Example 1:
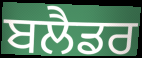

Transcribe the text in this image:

ਬਲੈਡਰ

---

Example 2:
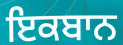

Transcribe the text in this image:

ਇਕਬਾਨ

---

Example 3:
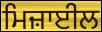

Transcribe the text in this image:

ਮਿਜ਼ਾਈਲ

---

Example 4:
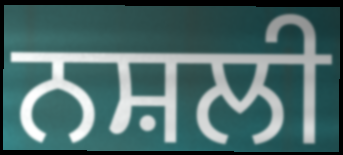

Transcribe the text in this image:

ਨਸ਼ਲੀ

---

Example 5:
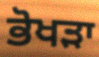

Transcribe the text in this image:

ਭੋਖੜਾ